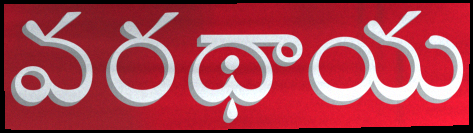
వరథాయ